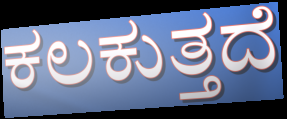
ಕಲಕುತ್ತದೆ